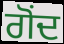
ਗੋਂਦ